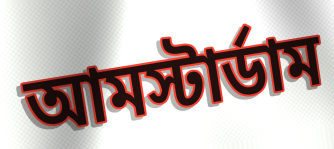
আমস্টার্ডাম